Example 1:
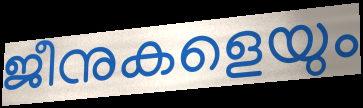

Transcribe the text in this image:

ജീനുകളെയും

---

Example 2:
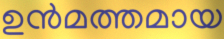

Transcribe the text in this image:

ഉൻമത്തമായ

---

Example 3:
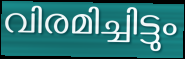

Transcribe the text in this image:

വിരമിച്ചിട്ടും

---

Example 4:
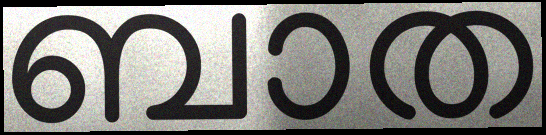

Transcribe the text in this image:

ബാത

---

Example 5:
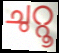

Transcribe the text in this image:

ചുറ്റൂ